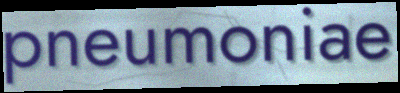
pneumoniae